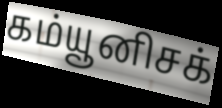
கம்யூனிசக்